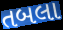
તબલા